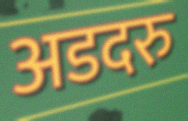
अडदरु